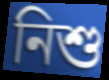
নিশু